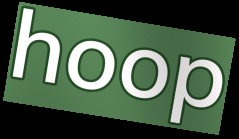
hoop